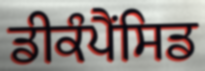
ਡੀਕੰਪੈਂਸਿਡ